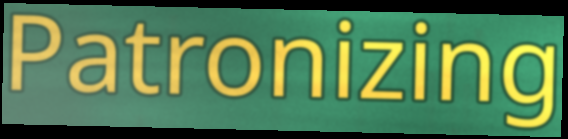
Patronizing